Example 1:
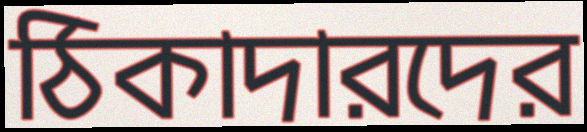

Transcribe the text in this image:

ঠিকাদারদের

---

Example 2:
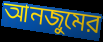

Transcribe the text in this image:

আনজুমের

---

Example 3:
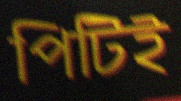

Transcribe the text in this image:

পিটিই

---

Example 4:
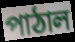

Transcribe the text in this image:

পাঠাল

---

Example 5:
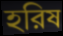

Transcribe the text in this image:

হরিষ